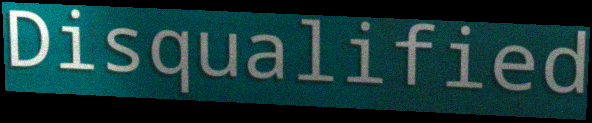
Disqualified